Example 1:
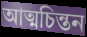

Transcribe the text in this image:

আত্মচিন্তন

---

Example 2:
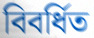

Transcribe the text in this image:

বিবর্ধিত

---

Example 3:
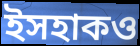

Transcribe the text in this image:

ইসহাকও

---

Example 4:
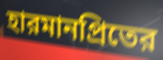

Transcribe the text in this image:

হারমানপ্রিতের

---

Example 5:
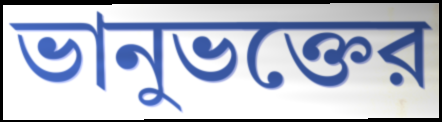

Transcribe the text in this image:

ভানুভক্তের